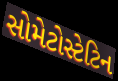
સોમેટોસ્ટેટિન